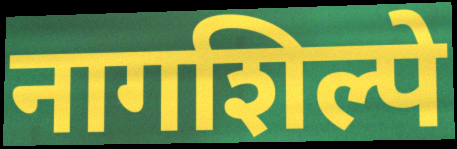
नागशिल्पे